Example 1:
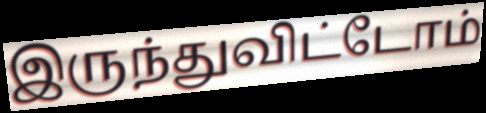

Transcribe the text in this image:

இருந்துவிட்டோம்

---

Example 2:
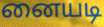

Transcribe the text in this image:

னையடி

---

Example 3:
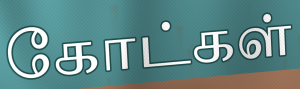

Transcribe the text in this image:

கோட்கள்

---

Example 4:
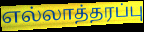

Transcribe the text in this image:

எல்லாத்தரப்பு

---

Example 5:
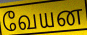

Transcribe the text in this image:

வேயன